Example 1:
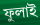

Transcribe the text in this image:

ফুলাই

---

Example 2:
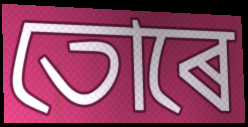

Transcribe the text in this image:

তোৰে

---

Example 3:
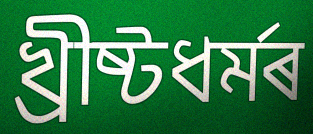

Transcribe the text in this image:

খ্ৰীষ্টধৰ্মৰ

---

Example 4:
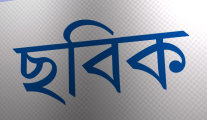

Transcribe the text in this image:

ছবিক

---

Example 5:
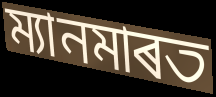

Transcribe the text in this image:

ম্যানমাৰত